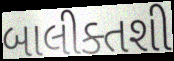
બાલીક્તશી